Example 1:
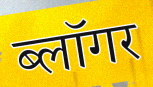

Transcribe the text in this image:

ब्लॉगर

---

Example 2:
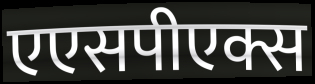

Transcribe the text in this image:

एएसपीएक्स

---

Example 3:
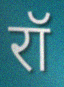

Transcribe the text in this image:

रॉ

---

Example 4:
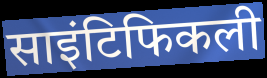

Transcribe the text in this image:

साइंटिफिकली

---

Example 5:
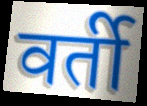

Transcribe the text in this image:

वर्ती